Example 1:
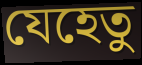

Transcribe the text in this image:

যেহেতু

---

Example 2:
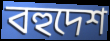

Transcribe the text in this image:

বহুদেশ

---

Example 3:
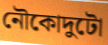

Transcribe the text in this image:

নৌকোদুটো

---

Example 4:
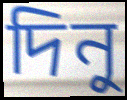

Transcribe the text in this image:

দিনু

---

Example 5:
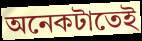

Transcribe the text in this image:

অনেকটাতেই